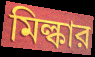
মিল্কার